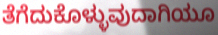
ತೆಗೆದುಕೊಳ್ಳುವುದಾಗಿಯೂ